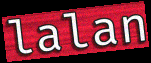
lalan